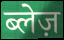
ब्लेज़